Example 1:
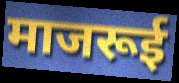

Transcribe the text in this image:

माजरूई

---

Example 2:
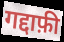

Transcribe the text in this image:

गद्दाफ़ी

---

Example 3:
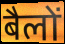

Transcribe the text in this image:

बैलों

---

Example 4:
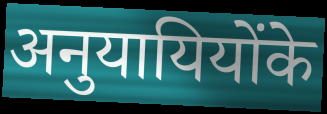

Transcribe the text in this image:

अनुयायियोंके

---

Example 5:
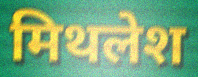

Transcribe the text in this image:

मिथलेश